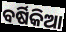
ବର୍ଷିକିଆ